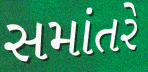
સમાંતરે